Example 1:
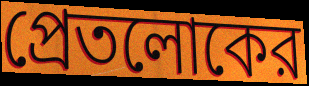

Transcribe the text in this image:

প্রেতলোকের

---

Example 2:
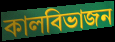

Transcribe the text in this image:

কালবিভাজন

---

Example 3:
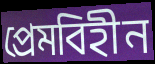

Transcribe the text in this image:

প্রেমবিহীন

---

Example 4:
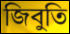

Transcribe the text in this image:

জিবুতি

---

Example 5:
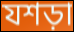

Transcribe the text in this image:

যশড়া